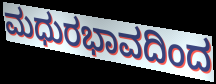
ಮಧುರಭಾವದಿಂದ